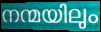
നന്മയിലും